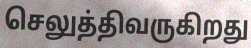
செலுத்திவருகிறது